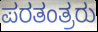
ಪರತಂತ್ರರು